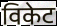
विकेट